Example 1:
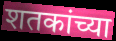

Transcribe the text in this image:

शतकांच्या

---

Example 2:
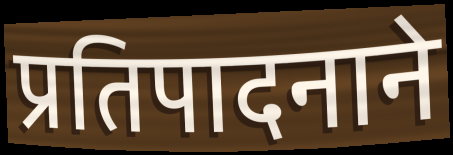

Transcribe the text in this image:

प्रतिपादनाने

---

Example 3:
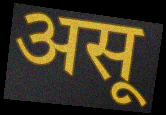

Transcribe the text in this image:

असू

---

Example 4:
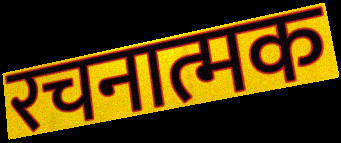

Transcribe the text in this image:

रचनात्मक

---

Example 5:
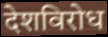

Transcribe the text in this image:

देशविरोध